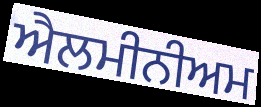
ਐਲਮੀਨੀਅਮ